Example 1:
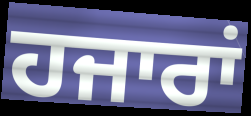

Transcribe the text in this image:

ਹਜਾਰਾਂ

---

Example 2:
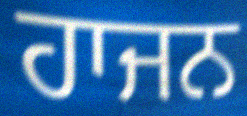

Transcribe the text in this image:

ਹਾਜਨ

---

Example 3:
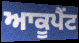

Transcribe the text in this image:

ਆਕੂਪੈਂਟ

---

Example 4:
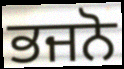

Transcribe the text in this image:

ਭਜਨੋ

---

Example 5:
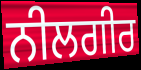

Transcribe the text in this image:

ਨੀਲਗੀਰ